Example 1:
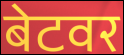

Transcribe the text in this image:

बेटवर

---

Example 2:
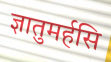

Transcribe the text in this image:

ज्ञातुमर्हसि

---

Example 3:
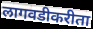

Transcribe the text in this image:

लागवडीकरीता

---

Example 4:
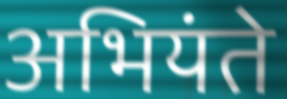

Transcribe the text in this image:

अभियंते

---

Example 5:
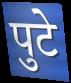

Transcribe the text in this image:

पुटे